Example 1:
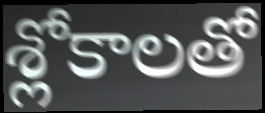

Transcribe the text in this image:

శ్లోకాలతో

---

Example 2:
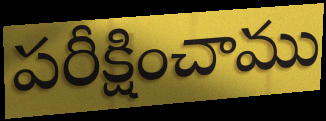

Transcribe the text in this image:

పరీక్షించాము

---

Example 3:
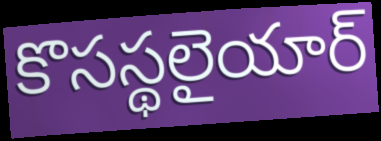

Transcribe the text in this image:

కొసస్థలైయార్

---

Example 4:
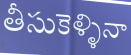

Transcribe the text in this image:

తీసుకెళ్ళినా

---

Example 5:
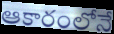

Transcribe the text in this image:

ఆకారంలోనే